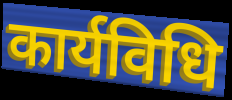
कार्यविधि